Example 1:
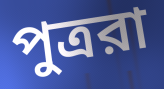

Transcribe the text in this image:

পুত্ররা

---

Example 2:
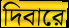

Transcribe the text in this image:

দিবারে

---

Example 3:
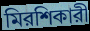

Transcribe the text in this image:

মিরশিকারী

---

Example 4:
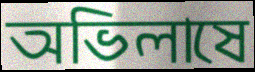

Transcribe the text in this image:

অভিলাষে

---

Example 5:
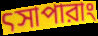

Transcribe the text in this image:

ৎসাপারাং